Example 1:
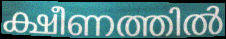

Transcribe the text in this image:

ക്ഷീണത്തിൽ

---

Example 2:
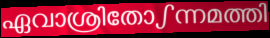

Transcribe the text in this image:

ഏവാശ്രിതോഽന്നമത്തി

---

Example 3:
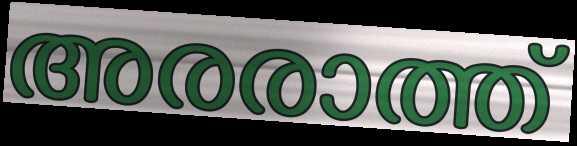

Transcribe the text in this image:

അരരാത്ത്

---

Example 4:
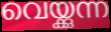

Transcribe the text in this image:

വെയ്ക്കുന്ന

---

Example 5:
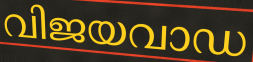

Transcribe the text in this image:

വിജയവാഡ